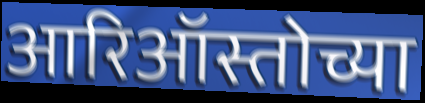
आरिऑस्तोच्या